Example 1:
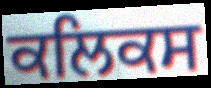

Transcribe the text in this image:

ਕਲਿਕਸ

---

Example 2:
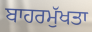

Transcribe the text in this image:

ਬਾਹਰਮੁੱਖਤਾ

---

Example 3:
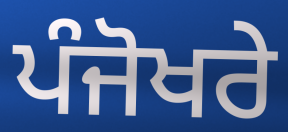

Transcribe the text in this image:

ਪੰਜੋਖਰੇ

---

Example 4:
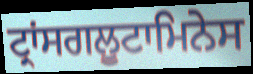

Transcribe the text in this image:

ਟ੍ਰਾਂਸਗਲੂਟਾਮਿਨੇਸ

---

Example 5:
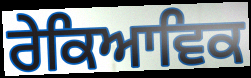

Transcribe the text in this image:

ਰੇਕਿਆਵਿਕ